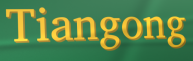
Tiangong